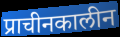
प्राचीनकालीन